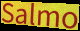
Salmo